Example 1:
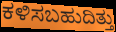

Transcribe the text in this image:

ಕಳಿಸಬಹುದಿತ್ತು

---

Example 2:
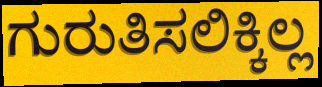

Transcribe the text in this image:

ಗುರುತಿಸಲಿಕ್ಕಿಲ್ಲ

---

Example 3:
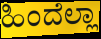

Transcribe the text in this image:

ಹಿಂದೆಲ್ಲಾ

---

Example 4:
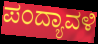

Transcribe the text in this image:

ಪಂದ್ಯಾವಳಿ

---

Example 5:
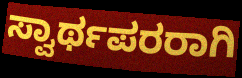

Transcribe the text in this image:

ಸ್ವಾರ್ಥಪರರಾಗಿ